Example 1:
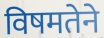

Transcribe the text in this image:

विषमतेने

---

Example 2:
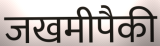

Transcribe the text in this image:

जखमीपैकी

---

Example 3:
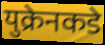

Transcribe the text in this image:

युक्रेनकडे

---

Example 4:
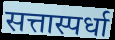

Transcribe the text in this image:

सत्तास्पर्धा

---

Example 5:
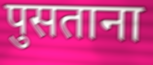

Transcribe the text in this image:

पुसताना